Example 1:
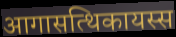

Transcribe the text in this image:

आगासत्थिकायस्स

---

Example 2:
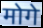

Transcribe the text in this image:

मोगे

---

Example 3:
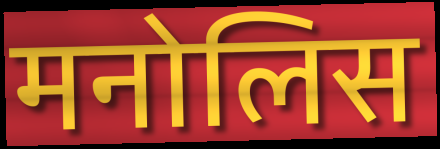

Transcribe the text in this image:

मनोलिस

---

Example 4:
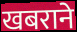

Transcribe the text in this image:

खबराने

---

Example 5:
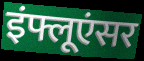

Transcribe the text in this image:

इंफ्लूएंसर